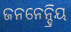
ଜନନେନ୍ଦ୍ରିୟ